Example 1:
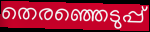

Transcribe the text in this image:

തെരഞ്ഞെടുപ്പ്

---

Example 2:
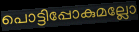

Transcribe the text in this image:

പൊട്ടിപ്പോകുമല്ലോ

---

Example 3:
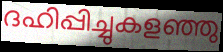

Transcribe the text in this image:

ദഹിപ്പിച്ചുകളഞ്ഞു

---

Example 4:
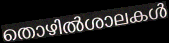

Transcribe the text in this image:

തൊഴിൽശാലകൾ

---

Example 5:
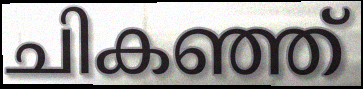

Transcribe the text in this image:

ചികഞ്ഞ്